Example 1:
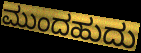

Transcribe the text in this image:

ಮುಂದಹುದು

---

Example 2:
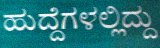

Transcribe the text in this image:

ಹುದ್ದೆಗಳಲ್ಲಿದ್ದು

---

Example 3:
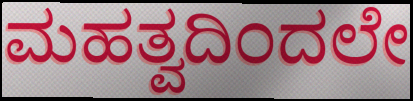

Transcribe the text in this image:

ಮಹತ್ವದಿಂದಲೇ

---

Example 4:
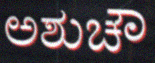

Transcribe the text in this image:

ಅಶುಚೌ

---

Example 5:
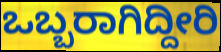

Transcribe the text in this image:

ಒಬ್ಬರಾಗಿದ್ದೀರಿ